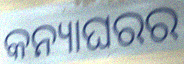
କନ୍ୟାଘରର